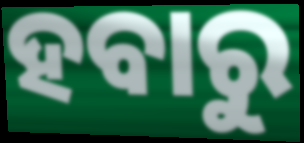
ହବାରୁ